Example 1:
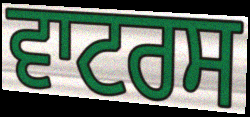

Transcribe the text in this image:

ਵਾਟਰਸ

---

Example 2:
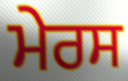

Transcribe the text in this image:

ਮੇਰਸ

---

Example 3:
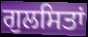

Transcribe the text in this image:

ਗੁਲਸਿਤਾਂ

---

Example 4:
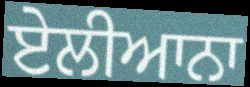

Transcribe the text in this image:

ਏਲੀਆਨਾ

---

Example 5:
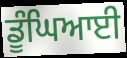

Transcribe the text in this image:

ਡੂੰਘਿਆਈ